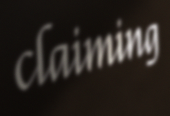
claiming